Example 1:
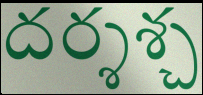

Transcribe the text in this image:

దర్శశ్చ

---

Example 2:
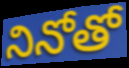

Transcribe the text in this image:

నినోతో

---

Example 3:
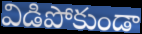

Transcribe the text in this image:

విడిపోకుండా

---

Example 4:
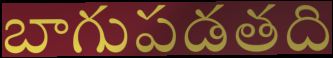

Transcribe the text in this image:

బాగుపడతది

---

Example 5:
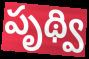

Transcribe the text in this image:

పృథ్వి